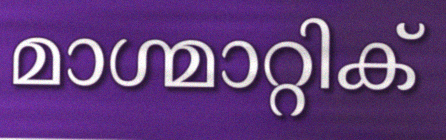
മാഗ്മാറ്റിക്